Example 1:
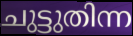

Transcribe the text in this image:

ചുട്ടുതിന്ന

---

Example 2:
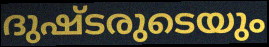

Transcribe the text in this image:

ദുഷ്ടരുടെയും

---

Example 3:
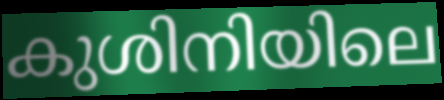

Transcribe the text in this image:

കുശിനിയിലെ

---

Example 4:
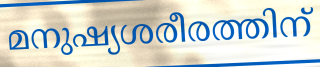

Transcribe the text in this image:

മനുഷ്യശരീരത്തിന്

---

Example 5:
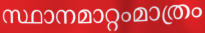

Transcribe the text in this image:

സ്ഥാനമാറ്റംമാത്രം